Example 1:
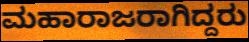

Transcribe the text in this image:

ಮಹಾರಾಜರಾಗಿದ್ದರು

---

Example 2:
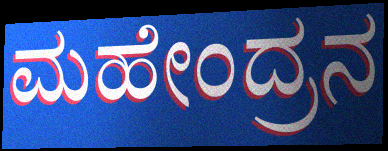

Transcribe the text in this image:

ಮಹೇಂದ್ರನ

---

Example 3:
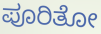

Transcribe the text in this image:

ಪೂರಿತೋ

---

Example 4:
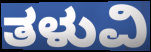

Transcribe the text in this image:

ತಳುವಿ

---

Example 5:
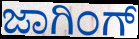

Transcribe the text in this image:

ಜಾಗಿಂಗ್